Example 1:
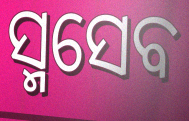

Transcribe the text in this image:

ସ୍ମସେବ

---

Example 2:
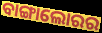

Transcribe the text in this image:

ବାଙ୍ଗାଲୋରର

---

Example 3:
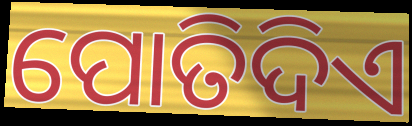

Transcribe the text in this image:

ପୋତିଦିଏ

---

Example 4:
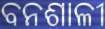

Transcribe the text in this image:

ବନଶାଳୀ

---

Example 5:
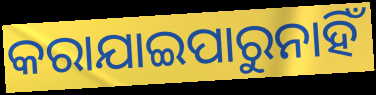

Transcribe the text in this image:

କରାଯାଇପାରୁନାହିଁ